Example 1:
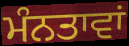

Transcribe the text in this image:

ਮੰਨਤਾਵਾਂ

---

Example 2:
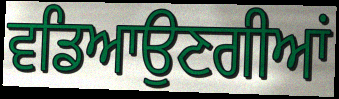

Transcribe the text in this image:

ਵਡਿਆਉਣਗੀਆਂ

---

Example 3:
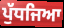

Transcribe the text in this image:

ਪੁੱਧਜਿਆ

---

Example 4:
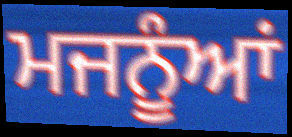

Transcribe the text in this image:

ਮਜਨੂੰਆਂ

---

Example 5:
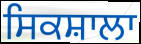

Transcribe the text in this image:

ਸਿਕਸ਼ਾਲਾ